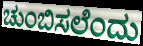
ಚುಂಬಿಸಲೆಂದು